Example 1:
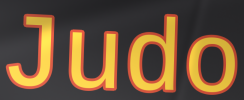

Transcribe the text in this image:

Judo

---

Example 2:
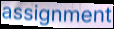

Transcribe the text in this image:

assignment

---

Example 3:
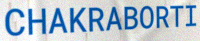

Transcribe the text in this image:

CHAKRABORTI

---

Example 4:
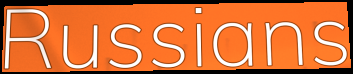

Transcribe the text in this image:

Russians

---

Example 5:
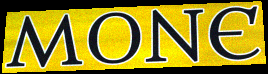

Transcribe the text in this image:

MONE